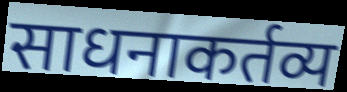
साधनाकर्तव्य